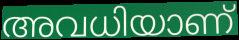
അവധിയാണ്